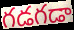
గడగడా